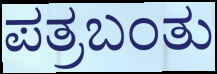
ಪತ್ರಬಂತು